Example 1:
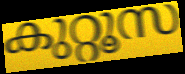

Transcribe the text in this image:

കുറ്റൂസ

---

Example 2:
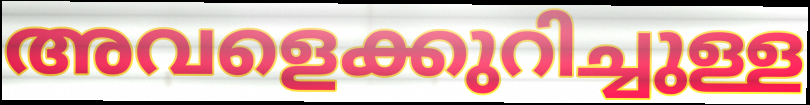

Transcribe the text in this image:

അവളെക്കുറിച്ചുള്ള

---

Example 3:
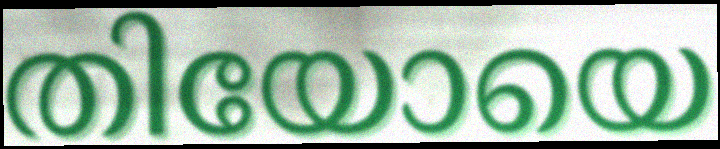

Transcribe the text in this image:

തിയോയെ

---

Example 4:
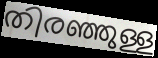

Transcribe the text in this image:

തിരഞ്ഞുള്ള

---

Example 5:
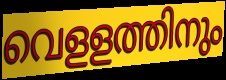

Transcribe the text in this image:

വെളളത്തിനും